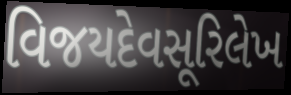
વિજયદેવસૂરિલેખ